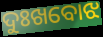
ଦୁଃଖବୋଝ